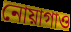
নোয়াগাও